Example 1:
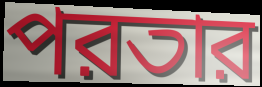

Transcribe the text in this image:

পরতার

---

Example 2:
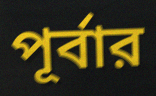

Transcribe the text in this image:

পূর্বার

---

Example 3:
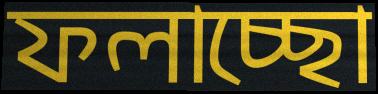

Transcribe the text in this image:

ফলাচ্ছো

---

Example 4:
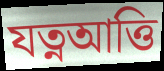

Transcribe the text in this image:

যত্নআত্তি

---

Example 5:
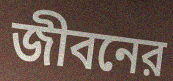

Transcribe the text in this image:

জীবনের